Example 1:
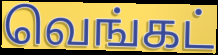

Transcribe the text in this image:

வெங்கட்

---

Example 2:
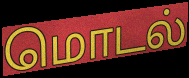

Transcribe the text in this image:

மொடல்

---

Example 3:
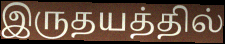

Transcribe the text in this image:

இருதயத்தில்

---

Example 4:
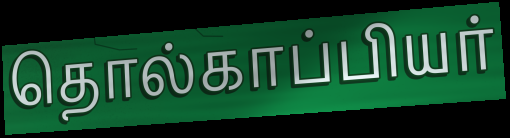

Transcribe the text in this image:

தொல்காப்பியர்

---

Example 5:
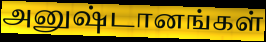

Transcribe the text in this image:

அனுஷ்டானங்கள்